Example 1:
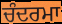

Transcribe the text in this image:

ਚੰਦਰਮਾ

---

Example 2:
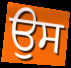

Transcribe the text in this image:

ਉਸ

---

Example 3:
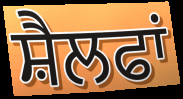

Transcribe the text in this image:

ਸ਼ੈਲਫਾਂ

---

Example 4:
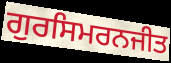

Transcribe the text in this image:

ਗੁਰਸਿਮਰਨਜੀਤ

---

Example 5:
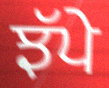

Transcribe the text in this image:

ਝੱਪੇ